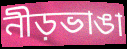
নীড়ভাঙা